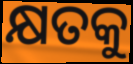
କ୍ଷତକୁ